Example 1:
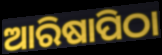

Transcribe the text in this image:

ଆରିଷାପିଠା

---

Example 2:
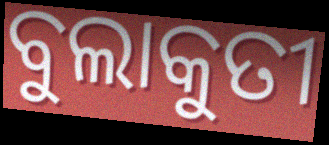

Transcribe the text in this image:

ବୁଲାକୁତୀ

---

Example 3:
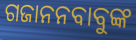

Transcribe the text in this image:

ଗଜାନନବାବୁଙ୍କ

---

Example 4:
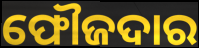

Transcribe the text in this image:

ଫୌଜଦାର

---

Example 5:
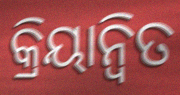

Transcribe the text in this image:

କ୍ରିୟାନ୍ୱିତ